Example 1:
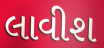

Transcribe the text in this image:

લાવીશ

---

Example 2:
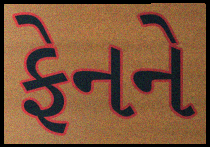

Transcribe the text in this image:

ફેનને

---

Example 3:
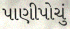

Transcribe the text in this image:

પાણીપોચું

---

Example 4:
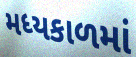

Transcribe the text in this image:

મધ્યકાળમાં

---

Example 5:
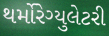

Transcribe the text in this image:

થર્મોરેગ્યુલેટરી